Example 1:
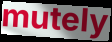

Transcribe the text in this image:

mutely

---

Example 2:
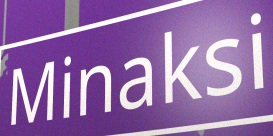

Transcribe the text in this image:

Minaksi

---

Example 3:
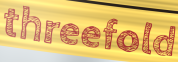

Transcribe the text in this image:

threefold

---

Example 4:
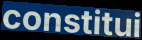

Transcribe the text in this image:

constitui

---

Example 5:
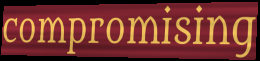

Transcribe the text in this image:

compromising